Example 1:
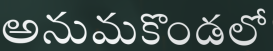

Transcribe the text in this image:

అనుమకొండలో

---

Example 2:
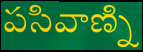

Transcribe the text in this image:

పసివాణ్ని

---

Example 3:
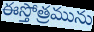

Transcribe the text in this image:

ఈస్తోత్రమును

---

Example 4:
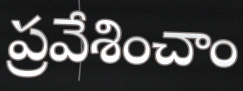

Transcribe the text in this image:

ప్రవేశించాం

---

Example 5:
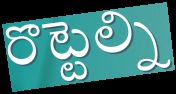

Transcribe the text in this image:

రొట్టెల్ని